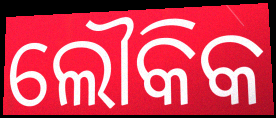
ଲୌକିକ